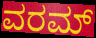
ವರಮ್